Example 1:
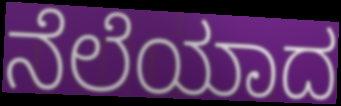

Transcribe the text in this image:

ನೆಲೆಯಾದ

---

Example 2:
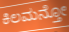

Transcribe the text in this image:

ಕಿಲಮನ್ತೋ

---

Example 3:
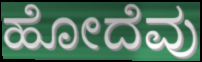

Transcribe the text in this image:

ಹೋದೆವು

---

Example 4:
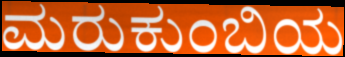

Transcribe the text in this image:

ಮರುಕುಂಬಿಯ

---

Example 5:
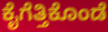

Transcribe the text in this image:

ಕೈಗೆತ್ತಿಕೊಂಡೆ